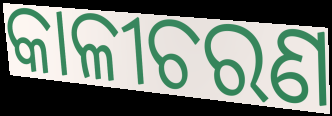
କାଳୀଚରଣ